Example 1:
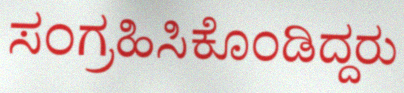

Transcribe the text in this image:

ಸಂಗ್ರಹಿಸಿಕೊಂಡಿದ್ದರು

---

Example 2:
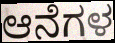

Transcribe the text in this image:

ಆನೆಗಳ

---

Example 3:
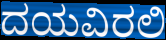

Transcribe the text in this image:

ದಯವಿರಲಿ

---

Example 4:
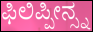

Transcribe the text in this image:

ಫಿಲಿಪ್ಪೀನ್ಸ್ನ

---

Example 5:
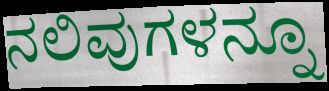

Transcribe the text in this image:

ನಲಿವುಗಳನ್ನೂ